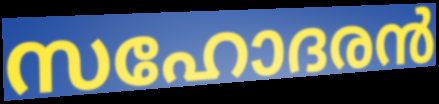
സഹോദരൻ